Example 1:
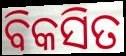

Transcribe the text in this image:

ବିକସିତ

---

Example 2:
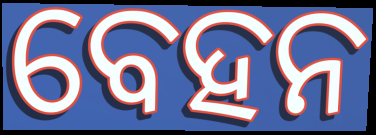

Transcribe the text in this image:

ବେହନ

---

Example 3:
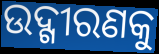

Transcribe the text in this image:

ଉଦ୍ଗୀରଣକୁ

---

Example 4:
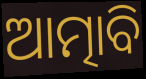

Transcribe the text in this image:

ଆତ୍ମାବି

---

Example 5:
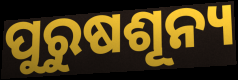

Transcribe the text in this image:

ପୁରୁଷଶୂନ୍ୟ